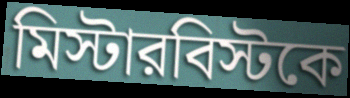
মিস্টারবিস্টকে